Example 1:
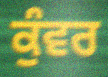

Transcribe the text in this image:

ਕੁੰਵਰ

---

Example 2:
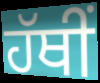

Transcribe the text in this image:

ਹੱਥੀਂ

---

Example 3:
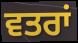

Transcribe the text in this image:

ਵਤਰਾਂ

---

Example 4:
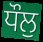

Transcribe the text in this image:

ਧੌਲੁ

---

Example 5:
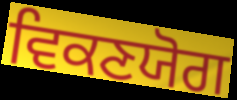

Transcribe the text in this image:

ਵਿਕਣਯੋਗ